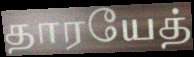
தாரயேத்